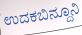
ಉದಕಬಿನ್ದೂನಿ